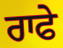
ਰਾਫੇ